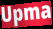
Upma